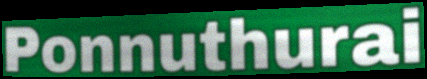
Ponnuthurai